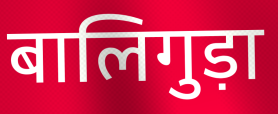
बालिगुड़ा